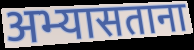
अभ्यासताना